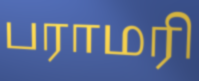
பராமரி